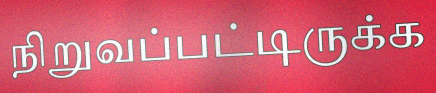
நிறுவப்பட்டிருக்க